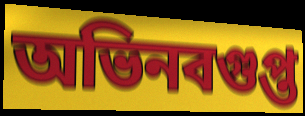
অভিনবগুপ্ত